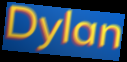
Dylan